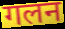
गलन